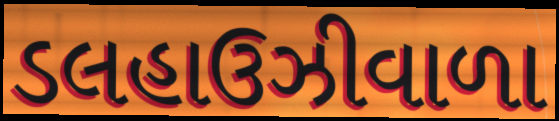
ડલહાઉઝીવાળા